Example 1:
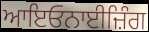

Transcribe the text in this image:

ਆਇਓਨਾਈਜ਼ਿੰਗ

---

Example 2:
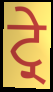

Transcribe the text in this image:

ਟ੍ਰੇ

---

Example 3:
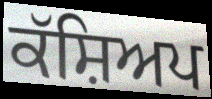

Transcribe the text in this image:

ਕੱਸ਼ਿਅਪ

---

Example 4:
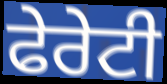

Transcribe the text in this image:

ਫੇਰੇਟੀ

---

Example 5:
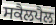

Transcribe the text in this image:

ਸਕੈਲਪੈਲ